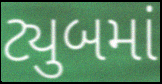
ટ્યુબમાં